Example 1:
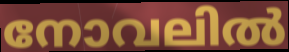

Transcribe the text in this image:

നോവലിൽ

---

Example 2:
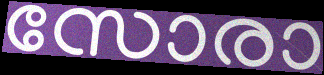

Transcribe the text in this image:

സോരാ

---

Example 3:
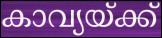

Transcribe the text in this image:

കാവ്യയ്ക്ക്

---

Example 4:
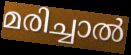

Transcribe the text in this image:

മരിച്ചാൽ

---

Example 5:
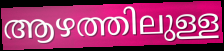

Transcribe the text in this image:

ആഴത്തിലുള്ള